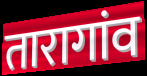
तारागांव